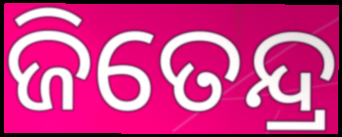
ଜିତେନ୍ଦ୍ର